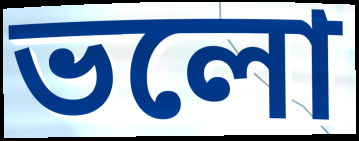
ভলো